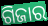
ଗିଜାର